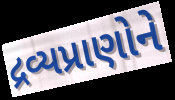
દ્રવ્યપ્રાણોને